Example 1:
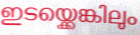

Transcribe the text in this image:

ഇടയ്ക്കെങ്കിലും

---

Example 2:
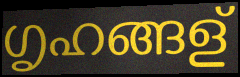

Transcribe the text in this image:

ഗൃഹങ്ങള്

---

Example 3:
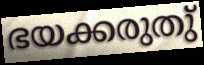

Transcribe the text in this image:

ഭയക്കരുതു്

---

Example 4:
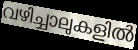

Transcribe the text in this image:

വഴിച്ചാലുകളിൽ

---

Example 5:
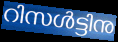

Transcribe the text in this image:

റിസൾട്ടിനു